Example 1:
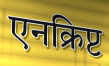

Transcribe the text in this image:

एनक्रिप्ट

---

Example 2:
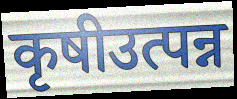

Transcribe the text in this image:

कृषीउत्पन्न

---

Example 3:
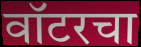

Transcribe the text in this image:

वॉटरचा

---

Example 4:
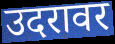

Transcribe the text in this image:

उदरावर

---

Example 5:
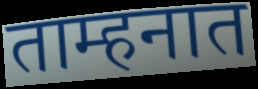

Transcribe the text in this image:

ताम्हनात